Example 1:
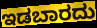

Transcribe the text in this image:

ಇಡಬಾರದು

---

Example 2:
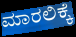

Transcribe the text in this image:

ಮಾರಲಿಕ್ಕೆ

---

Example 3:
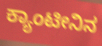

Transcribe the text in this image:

ಕ್ಯಾಂಟೀನಿನ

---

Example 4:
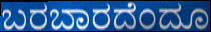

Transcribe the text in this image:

ಬರಬಾರದೆಂದೂ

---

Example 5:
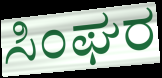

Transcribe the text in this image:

ಸಿಂಘರ